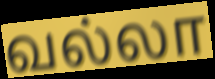
வல்லா